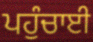
ਪਹੁੰਚਾਈ